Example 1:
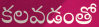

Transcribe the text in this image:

కలవడంతో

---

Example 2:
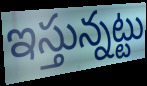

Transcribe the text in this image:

ఇస్తున్నట్టు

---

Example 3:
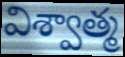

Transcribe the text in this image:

విశ్వాత్మ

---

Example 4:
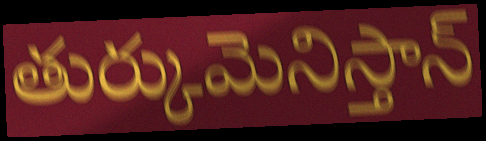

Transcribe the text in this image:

తుర్కుమెనిస్తాన్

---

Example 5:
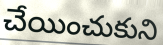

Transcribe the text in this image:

చేయించుకుని